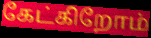
கேட்கிறோம்